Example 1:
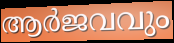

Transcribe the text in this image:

ആർജവവും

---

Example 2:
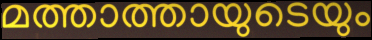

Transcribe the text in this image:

മത്താത്തായുടെയും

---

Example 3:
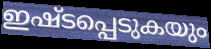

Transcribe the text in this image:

ഇഷ്ടപ്പെടുകയും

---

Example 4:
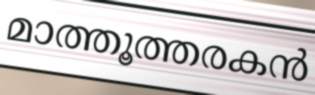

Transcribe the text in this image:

മാത്തൂത്തരകൻ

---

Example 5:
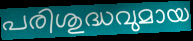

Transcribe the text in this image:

പരിശുദ്ധവുമായ